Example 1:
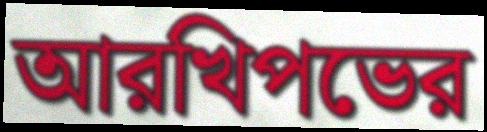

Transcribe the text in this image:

আরখিপভের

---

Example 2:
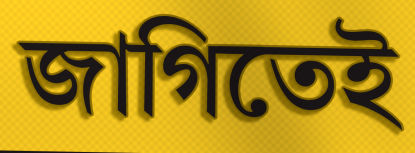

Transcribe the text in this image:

জাগিতেই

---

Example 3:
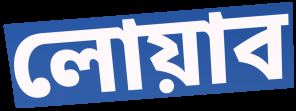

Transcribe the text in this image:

লোয়াব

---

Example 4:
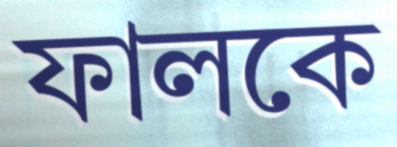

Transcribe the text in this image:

ফালকে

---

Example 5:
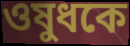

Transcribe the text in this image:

ওষুধকে